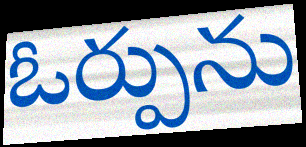
ఓర్పును